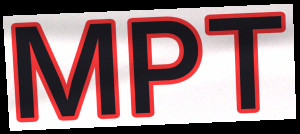
MPT